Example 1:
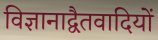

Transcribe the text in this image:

विज्ञानाद्वैतवादियों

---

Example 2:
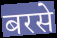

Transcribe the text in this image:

बरसे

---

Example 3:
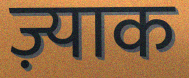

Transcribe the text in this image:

ज़्याक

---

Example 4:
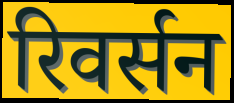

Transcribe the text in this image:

रिवर्सन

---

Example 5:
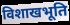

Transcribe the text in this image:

विशाखभूति